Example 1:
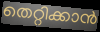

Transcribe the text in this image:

തെറ്റിക്കാൻ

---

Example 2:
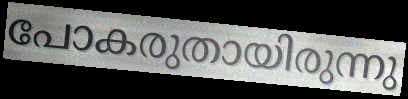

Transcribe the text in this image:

പോകരുതായിരുന്നു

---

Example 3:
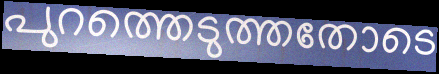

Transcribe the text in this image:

പുറത്തെടുത്തതോടെ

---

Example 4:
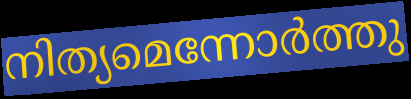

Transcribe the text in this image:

നിത്യമെന്നോർത്തു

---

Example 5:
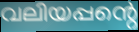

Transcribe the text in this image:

വലിയപ്പന്റെ